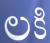
లకి